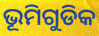
ଭୂମିଗୁଡିକ